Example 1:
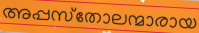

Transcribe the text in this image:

അപ്പസ്‌തോലന്മാരായ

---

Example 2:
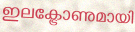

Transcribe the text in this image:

ഇലക്ട്രോണുമായി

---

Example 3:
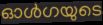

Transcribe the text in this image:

ഓൾഗയുടെ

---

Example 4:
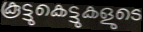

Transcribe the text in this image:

കൂട്ടുകെട്ടുകളുടെ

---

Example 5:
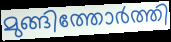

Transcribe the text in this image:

മുങ്ങിത്തോർത്തി